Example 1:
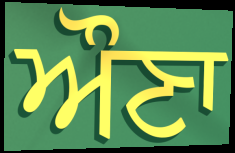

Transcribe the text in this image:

ਔਣਾ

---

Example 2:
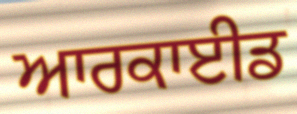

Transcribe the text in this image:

ਆਰਕਾਈਡ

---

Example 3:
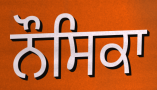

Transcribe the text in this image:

ਨੌਸਿਕਾ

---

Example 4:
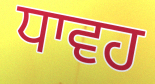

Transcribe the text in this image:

ਧਾਵਹ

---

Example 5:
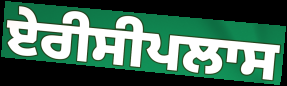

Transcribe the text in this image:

ਏਰੀਸੀਪਲਾਸ